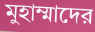
মুহাম্মাদের